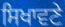
ਸਿਖਾਵਣੇ